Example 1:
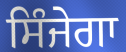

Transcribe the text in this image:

ਸਿੰਜੇਗਾ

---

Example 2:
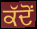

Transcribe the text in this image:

ਕੱਦੋਂ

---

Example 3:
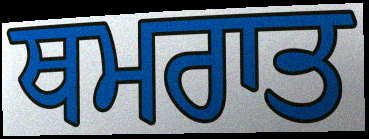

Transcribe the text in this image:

ਥਮਰਾਤ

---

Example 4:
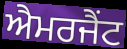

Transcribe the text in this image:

ਐਮਰਜੈਂਟ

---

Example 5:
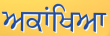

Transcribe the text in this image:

ਅਕਾਂਖਿਆ